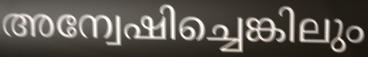
അന്വേഷിച്ചെങ്കിലും